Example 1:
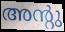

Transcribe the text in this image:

അന്റു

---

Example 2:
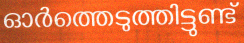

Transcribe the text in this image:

ഓർത്തെടുത്തിട്ടുണ്ട്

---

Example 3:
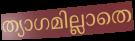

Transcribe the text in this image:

ത്യാഗമില്ലാതെ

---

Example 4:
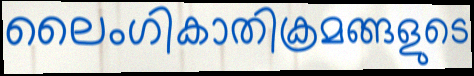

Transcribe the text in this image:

ലൈംഗികാതിക്രമങ്ങളുടെ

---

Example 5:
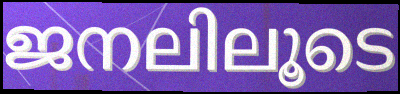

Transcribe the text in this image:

ജനലിലൂടെ